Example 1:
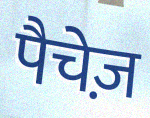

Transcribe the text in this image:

पैचेज़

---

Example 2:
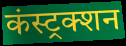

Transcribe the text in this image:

कंस्ट्रक्शन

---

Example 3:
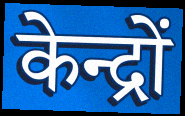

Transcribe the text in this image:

केन्द्रों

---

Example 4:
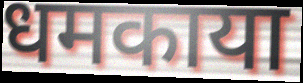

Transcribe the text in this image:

धमकाया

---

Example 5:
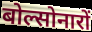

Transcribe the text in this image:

बोल्सोनारों